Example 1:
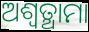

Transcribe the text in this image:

ଅଶ୍ଵତ୍ଥାମା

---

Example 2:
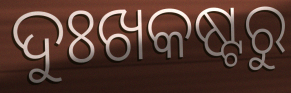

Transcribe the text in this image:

ଦୁଃଖକଷ୍ଟରୁ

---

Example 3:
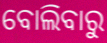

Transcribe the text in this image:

ବୋଲିବାରୁ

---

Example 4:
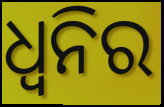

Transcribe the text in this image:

ଧ୍ବନିର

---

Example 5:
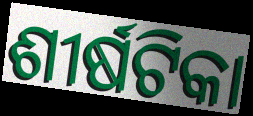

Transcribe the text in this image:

ଶୀର୍ଷଟିକା